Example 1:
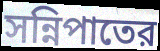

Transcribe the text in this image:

সন্নিপাতের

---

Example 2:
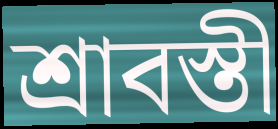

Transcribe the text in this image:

শ্রাবস্তী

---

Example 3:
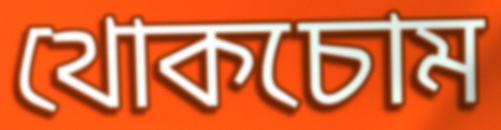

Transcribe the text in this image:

থোকচোম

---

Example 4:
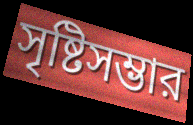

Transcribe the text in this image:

সৃষ্টিসম্ভার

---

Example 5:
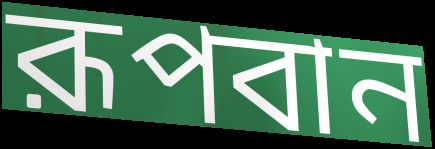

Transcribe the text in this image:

রূপবান